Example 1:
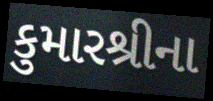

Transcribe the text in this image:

કુમારશ્રીના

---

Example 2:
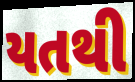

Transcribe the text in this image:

યતથી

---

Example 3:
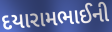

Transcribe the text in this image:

દયારામભાઈની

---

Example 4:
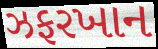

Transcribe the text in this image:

ઝફરખાન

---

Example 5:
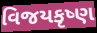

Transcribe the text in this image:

વિજયકૃષ્ણ